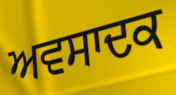
ਅਵਸਾਦਕ